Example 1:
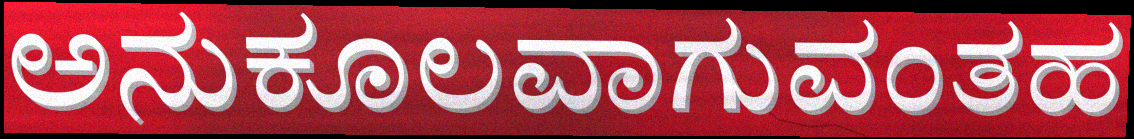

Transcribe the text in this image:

ಅನುಕೂಲವಾಗುವಂತಹ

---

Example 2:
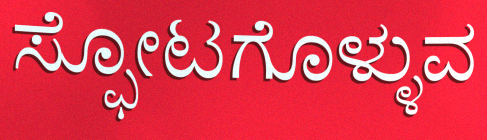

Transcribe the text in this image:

ಸ್ಫೋಟಗೊಳ್ಳುವ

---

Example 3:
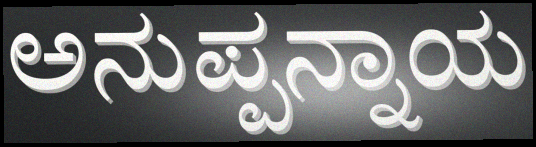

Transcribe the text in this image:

ಅನುಪ್ಪನ್ನಾಯ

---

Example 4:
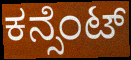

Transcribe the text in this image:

ಕನ್ಸೆಂಟ್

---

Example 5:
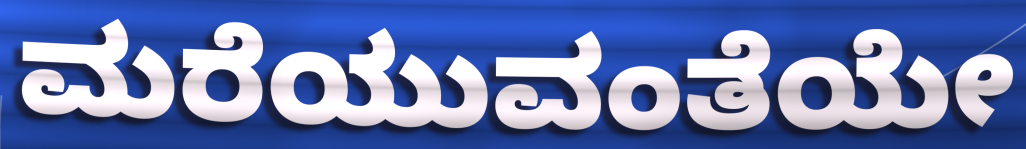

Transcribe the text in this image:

ಮರೆಯುವಂತೆಯೇ